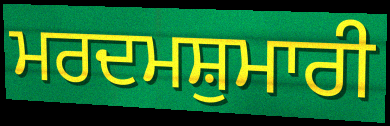
ਮਰਦਮਸ਼ੁਮਾਰੀ